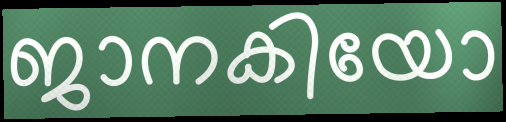
ജാനകിയോ